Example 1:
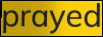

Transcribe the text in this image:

prayed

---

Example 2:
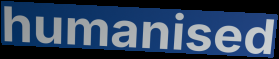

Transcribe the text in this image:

humanised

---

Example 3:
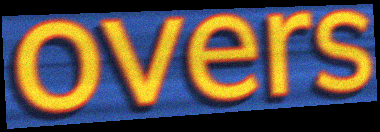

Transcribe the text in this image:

overs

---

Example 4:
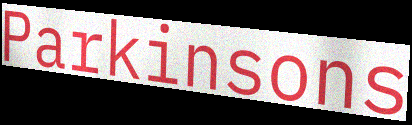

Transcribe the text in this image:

Parkinsons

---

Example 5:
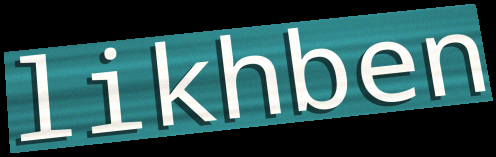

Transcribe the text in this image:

likhben